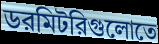
ডরমিটরিগুলোতে